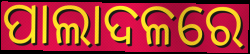
ପାଲାଦଳରେ